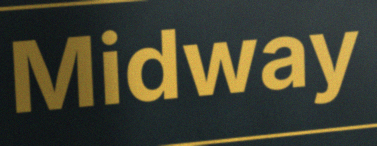
Midway